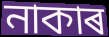
নাকাৰ